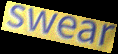
swear